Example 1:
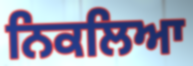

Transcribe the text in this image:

ਨਿਕਲਿਆ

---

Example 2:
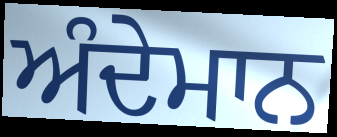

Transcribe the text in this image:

ਅੰਦੇਮਾਨ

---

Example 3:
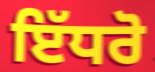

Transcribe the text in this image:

ਇੱਧਰੋ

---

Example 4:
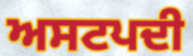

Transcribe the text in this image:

ਅਸਟਪਦੀ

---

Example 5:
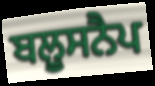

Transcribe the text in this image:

ਬਲੂਸਨੈਪ